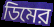
ডিমের